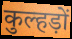
कुल्हड़ों